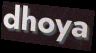
dhoya